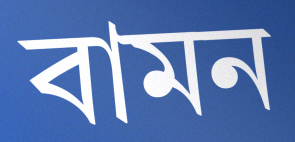
বামন